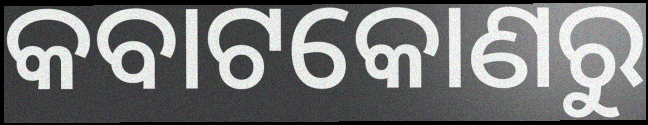
କବାଟକୋଣରୁ